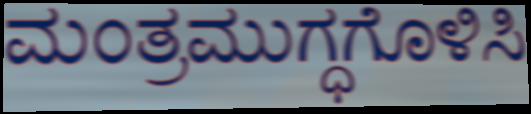
ಮಂತ್ರಮುಗ್ಧಗೊಳಿಸಿ